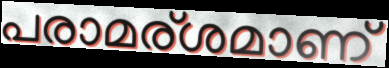
പരാമര്ശമാണ്